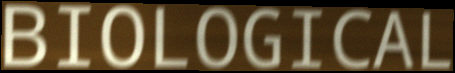
BIOLOGICAL